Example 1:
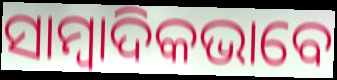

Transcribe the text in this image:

ସାମ୍ୱାଦିକଭାବେ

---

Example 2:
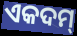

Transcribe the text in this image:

ଏକଦମ୍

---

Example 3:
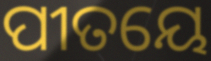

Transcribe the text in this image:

ପୀତୟେ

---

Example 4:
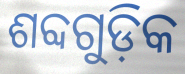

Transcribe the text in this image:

ଶବ୍ଦଗୁଡ଼ିକ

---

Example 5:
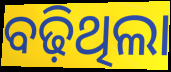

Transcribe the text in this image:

ବଢ଼ିଥିଲା